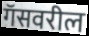
गॅसवरील